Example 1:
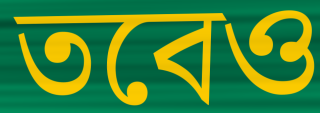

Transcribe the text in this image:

তবেও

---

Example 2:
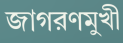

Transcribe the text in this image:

জাগরণমুখী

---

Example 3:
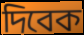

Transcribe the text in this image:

দিবেক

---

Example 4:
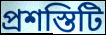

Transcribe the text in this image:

প্রশস্তিটি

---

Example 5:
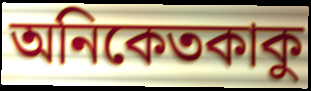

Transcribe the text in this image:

অনিকেতকাকু